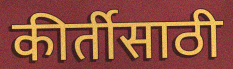
कीर्तीसाठी